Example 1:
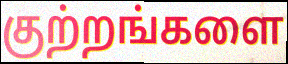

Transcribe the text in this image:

குற்றங்களை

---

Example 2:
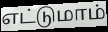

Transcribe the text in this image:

எட்டுமாம்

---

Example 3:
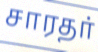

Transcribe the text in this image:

சாரதர்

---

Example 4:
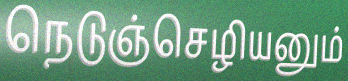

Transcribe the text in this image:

நெடுஞ்செழியனும்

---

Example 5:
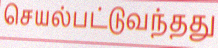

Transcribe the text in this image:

செயல்பட்டுவந்தது